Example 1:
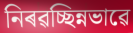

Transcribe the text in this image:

নিৰৱচ্ছিন্নভাৱে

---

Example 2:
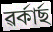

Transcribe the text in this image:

ৱৰ্কাৰ্ছ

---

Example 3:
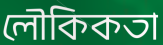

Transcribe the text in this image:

লৌকিকতা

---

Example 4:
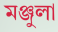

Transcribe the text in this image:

মঞ্জুলা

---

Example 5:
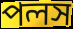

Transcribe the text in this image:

পলস